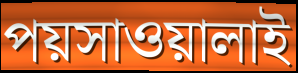
পয়সাওয়ালাই